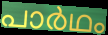
പാർഥം